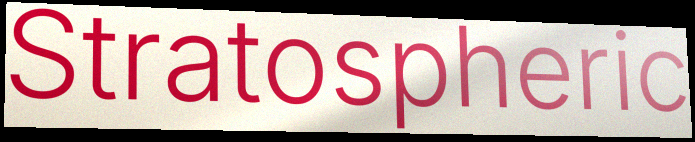
Stratospheric